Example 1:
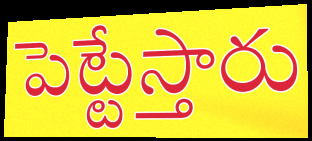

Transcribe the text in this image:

పెట్టేస్తారు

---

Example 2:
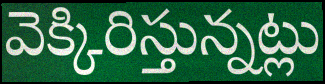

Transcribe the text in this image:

వెక్కిరిస్తున్నట్లు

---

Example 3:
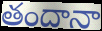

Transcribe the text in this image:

తందానా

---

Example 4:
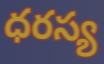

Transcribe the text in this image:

ధరస్య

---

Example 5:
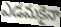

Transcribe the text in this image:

ఎడమకైనా